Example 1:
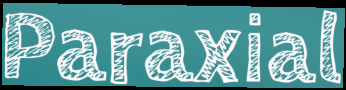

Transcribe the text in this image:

Paraxial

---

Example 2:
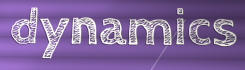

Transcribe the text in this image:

dynamics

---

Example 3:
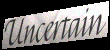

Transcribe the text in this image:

Uncertain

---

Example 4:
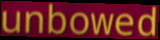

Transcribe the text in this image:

unbowed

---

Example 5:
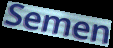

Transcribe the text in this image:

Semen